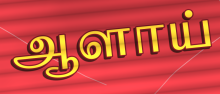
ஆளாய்